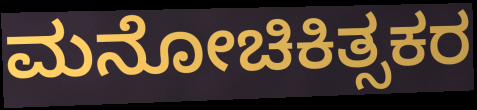
ಮನೋಚಿಕಿತ್ಸಕರ